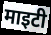
माइटी